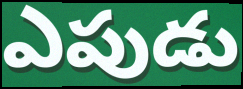
ఎపుడు